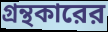
গ্রন্থকারের